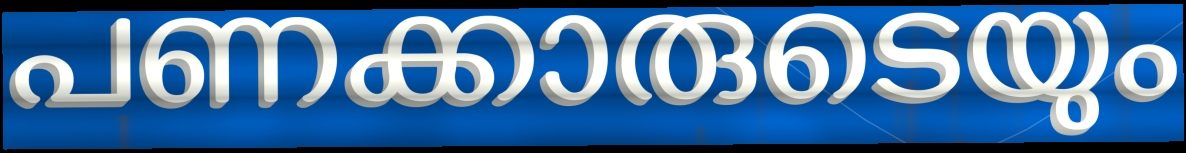
പണക്കാരുടെയും